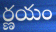
ర్ణయం